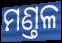
ମଣ୍ତଳ